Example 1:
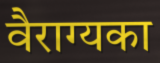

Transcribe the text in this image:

वैराग्यका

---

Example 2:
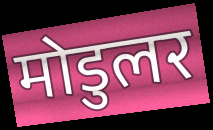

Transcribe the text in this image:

मोडुलर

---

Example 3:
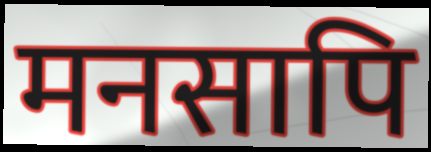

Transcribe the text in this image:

मनसापि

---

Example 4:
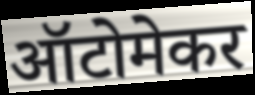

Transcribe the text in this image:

ऑटोमेकर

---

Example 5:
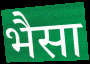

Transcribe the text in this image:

भैसा